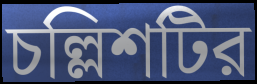
চল্লিশটির